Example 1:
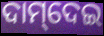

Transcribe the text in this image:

ଦାମ୍‌ଦେଇ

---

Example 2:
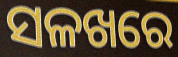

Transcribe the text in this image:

ସଳଖରେ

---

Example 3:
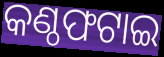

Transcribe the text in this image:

କଣ୍ଠଫଟାଇ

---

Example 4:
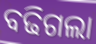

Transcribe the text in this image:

ବଢିଗଲା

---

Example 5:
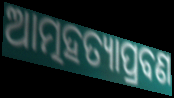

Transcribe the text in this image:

ଆତ୍ମହତ୍ୟାପ୍ରବଣ